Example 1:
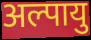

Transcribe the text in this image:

अल्पायु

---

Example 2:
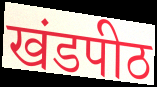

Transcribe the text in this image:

खंडपीठ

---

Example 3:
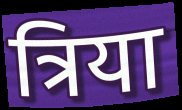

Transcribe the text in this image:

त्रिया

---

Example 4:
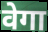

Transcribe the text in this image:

वेगा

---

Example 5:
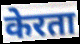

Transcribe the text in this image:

केरता